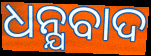
ଧନ୍ଯବାଦ